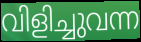
വിളിച്ചുവന്ന